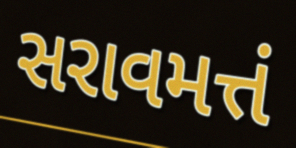
સરાવમત્તં